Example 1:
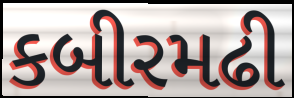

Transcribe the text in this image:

કબીરમઢી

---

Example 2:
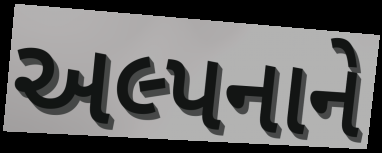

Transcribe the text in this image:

અલ્પનાને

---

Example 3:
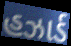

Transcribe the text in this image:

હઝાર્ડ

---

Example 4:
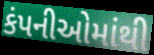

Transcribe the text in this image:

કંપનીઓમાંથી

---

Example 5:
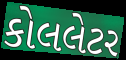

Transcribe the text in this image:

કોલલેટર